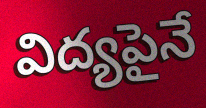
విద్యపైనే